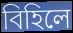
বিহিলে